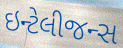
ઇન્ટેલીજન્સ